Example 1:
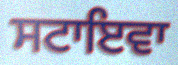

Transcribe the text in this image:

ਸਟਾਇਵਾ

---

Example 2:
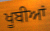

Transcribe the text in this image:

ਖੂਬੀਆਂ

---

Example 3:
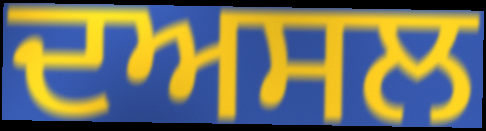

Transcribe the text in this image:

ਦਅਸਲ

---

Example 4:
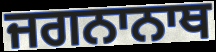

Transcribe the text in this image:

ਜਗਨਾਨਾਥ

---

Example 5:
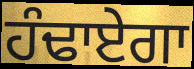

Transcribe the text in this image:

ਹੰਢਾਏਗਾ